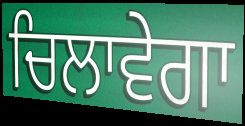
ਚਿਲਾਵੇਗਾ